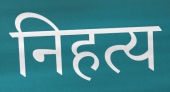
निहत्य